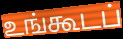
உங்கூடப்